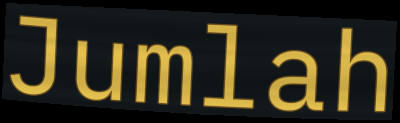
Jumlah